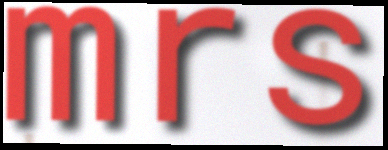
mrs